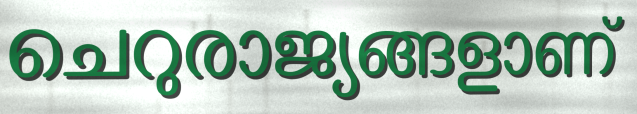
ചെറുരാജ്യങ്ങളാണ്